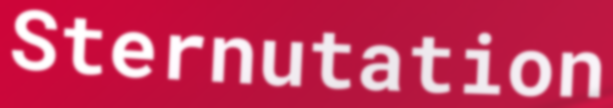
Sternutation